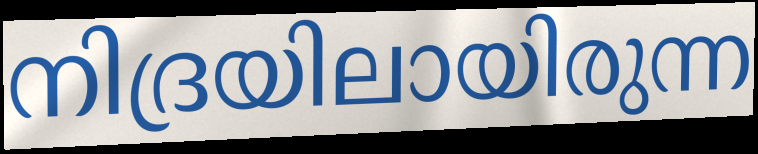
നിദ്രയിലായിരുന്ന